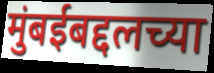
मुंबईबद्दलच्या